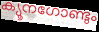
ക്യൂനഗോണ്ടും